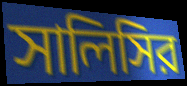
সালিসির